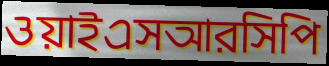
ওয়াইএসআরসিপি